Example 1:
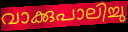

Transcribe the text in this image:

വാക്കുപാലിച്ചു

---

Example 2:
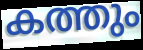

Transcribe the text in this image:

കത്തും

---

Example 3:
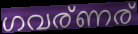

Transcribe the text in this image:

ഗവര്ണര്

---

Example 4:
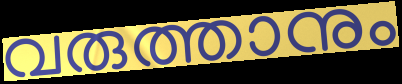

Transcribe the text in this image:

വരുത്താനും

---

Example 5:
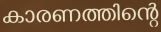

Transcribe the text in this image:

കാരണത്തിന്റെ